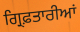
ਗ੍ਰਿਫ਼ਤਾਰੀਆਂ